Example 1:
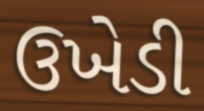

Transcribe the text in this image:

ઉખેડી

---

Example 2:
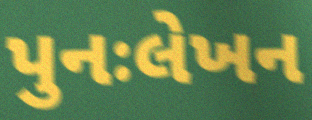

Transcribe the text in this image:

પુનઃલેખન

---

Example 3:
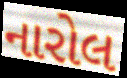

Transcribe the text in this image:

નારોલ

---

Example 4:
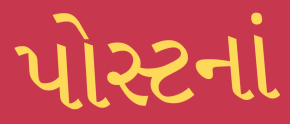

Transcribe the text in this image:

પોસ્ટનાં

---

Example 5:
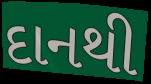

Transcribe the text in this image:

દાનથી